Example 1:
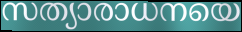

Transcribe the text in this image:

സത്യാരാധനയെ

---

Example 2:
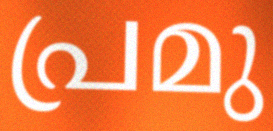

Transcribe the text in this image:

പ്രമു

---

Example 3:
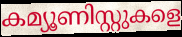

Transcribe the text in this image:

കമ്യൂണിസ്റ്റുകളെ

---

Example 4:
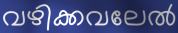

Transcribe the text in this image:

വഴിക്കവലേൽ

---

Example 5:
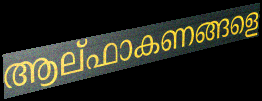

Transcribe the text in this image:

ആല്ഫാകണങ്ങളെ